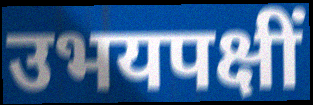
उभयपक्षीं